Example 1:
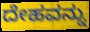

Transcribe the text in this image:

ದೇಹವನ್ನು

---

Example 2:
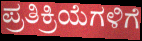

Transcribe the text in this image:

ಪ್ರತಿಕ್ರಿಯೆಗಳಿಗೆ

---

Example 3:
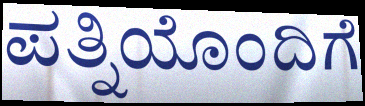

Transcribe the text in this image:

ಪತ್ನಿಯೊಂದಿಗೆ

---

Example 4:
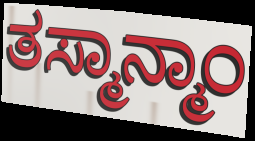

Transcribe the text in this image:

ತಸ್ಮಾನ್ಮಾಂ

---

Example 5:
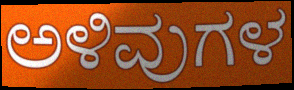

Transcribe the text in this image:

ಅಳಿವುಗಳ